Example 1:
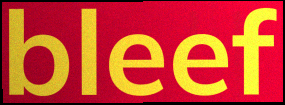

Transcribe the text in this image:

bleef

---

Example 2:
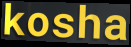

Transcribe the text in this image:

kosha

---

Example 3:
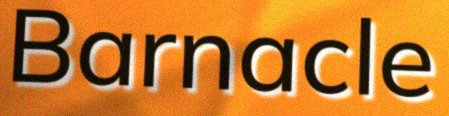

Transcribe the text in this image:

Barnacle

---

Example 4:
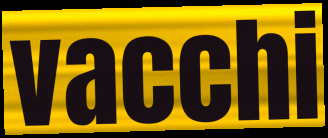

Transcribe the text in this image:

vacchi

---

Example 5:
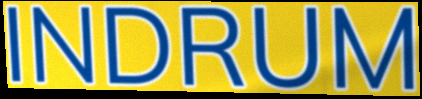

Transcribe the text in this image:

INDRUM